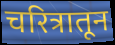
चरित्रातून